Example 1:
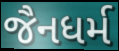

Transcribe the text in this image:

જૈનધર્મ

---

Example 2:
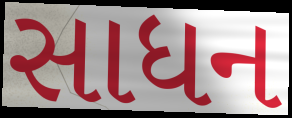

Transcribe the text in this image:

સાધન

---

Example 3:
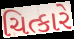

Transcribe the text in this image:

ચિત્કારે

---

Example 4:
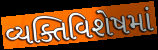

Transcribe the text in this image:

વ્યક્તિવિશેષમાં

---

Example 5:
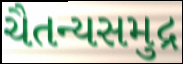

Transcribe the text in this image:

ચૈતન્યસમુદ્ર